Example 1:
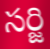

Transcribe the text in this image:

సర్జి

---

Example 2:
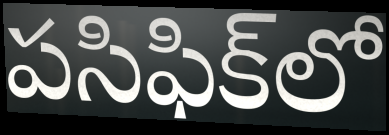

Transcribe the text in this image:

పసిఫిక్‌లో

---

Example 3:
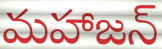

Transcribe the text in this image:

మహాజన్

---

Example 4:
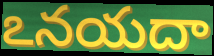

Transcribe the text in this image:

ఽనయదా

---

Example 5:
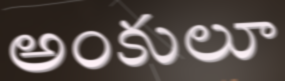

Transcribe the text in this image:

అంకులూ